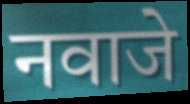
नवाजे